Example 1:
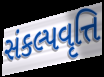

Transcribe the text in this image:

સંકલ્પવૃત્તિ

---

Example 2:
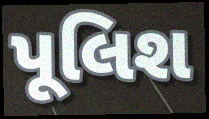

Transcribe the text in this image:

પૂલિશ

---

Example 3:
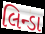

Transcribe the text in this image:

લિન્ડા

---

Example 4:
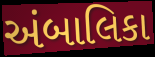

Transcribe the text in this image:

અંબાલિકા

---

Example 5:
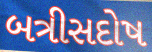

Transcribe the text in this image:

બત્રીસદોષ